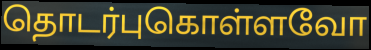
தொடர்புகொள்ளவோ